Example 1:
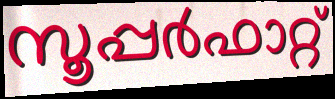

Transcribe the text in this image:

സൂപ്പർഫാറ്റ്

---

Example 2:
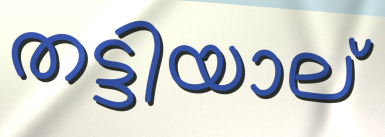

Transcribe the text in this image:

തട്ടിയാല്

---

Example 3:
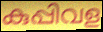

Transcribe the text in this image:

കുപ്പിവള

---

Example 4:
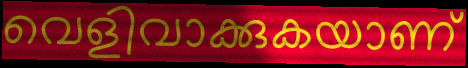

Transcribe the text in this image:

വെളിവാക്കുകയാണ്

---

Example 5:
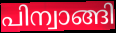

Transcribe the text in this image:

പിന്വാങ്ങി